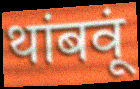
थांबवूं